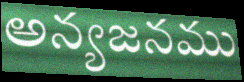
అన్యజనము